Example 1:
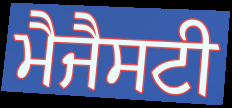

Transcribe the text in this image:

ਮੈਜੈਸਟੀ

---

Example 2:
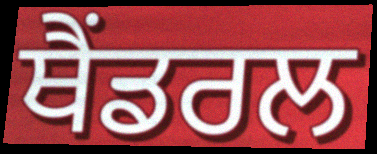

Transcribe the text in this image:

ਥੈਂਡਰਲ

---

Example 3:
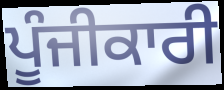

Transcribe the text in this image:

ਪੂੰਜੀਕਾਰੀ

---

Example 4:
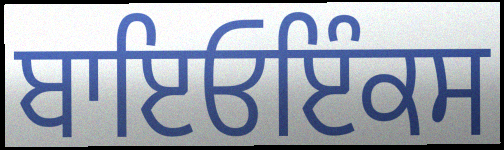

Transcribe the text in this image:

ਬਾਇਓਇੰਕਸ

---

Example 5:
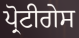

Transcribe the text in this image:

ਪ੍ਰੋਟੀਗੇਸ